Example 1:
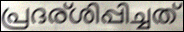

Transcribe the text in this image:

പ്രദര്ശിപ്പിച്ചത്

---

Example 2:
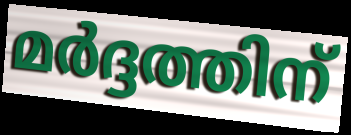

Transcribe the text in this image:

മർദ്ദത്തിന്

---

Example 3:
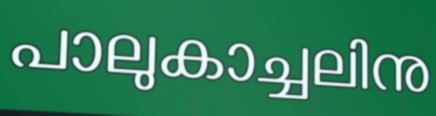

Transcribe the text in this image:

പാലുകാച്ചലിനു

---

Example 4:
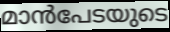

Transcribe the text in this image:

മാൻപേടയുടെ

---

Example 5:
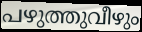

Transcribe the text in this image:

പഴുത്തുവീഴും